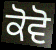
ਕੋਵੋ